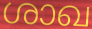
ശാഖ